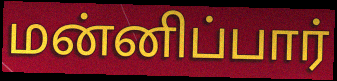
மன்னிப்பார்